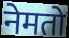
नेमतो